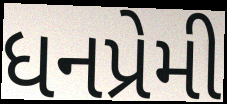
ધનપ્રેમી